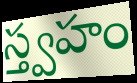
స్త్వహం